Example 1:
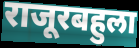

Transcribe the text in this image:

राजूरबहुला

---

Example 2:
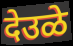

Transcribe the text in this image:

देउळे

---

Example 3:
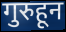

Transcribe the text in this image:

गुरुहून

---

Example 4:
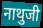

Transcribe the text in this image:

नाथुजी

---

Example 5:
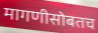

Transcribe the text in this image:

मागणीसोबतच